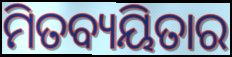
ମିତବ୍ୟୟିତାର